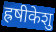
ह्रषीकेशु